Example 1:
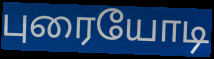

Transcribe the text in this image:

புரையோடி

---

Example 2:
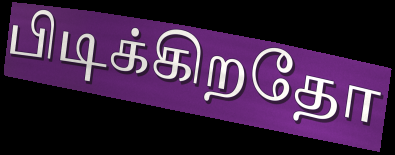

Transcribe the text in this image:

பிடிக்கிறதோ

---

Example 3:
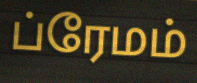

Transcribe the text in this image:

ப்ரேமம்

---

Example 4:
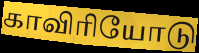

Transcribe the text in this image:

காவிரியோடு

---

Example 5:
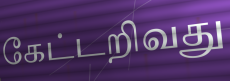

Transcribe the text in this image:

கேட்டறிவது